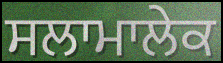
ਸਲਾਮਾਲੇਕ